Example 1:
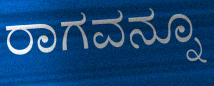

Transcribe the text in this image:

ರಾಗವನ್ನೂ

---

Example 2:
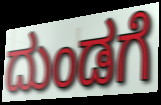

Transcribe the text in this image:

ದುಂಡಗೆ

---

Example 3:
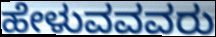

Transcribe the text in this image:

ಹೇಳುವವವರು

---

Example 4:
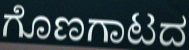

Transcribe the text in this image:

ಗೊಣಗಾಟದ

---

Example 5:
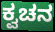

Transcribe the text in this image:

ಕ್ವಚನ